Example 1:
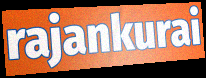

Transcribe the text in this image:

rajankurai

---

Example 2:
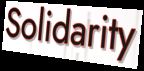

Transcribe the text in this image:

Solidarity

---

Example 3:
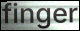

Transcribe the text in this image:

finger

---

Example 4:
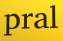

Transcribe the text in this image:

pral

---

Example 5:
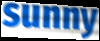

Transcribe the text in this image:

sunny